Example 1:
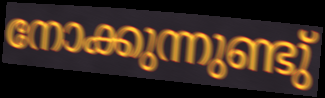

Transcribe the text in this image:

നോക്കുന്നുണ്ടു്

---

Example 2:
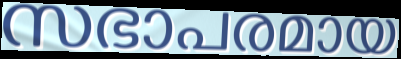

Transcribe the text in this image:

സഭാപരമായ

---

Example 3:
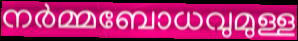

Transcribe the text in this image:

നർമ്മബോധവുമുള്ള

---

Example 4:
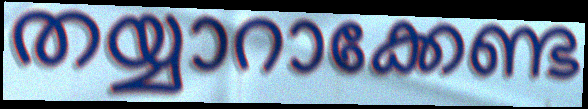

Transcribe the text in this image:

തയ്യാറാക്കേണ്ട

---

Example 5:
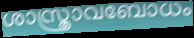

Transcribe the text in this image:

ശാസ്ത്രാവബോധം